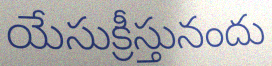
యేసుక్రీస్తునందు